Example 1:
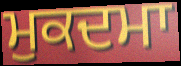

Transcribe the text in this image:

ਮੁਕਦਮਾ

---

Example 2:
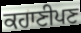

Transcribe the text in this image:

ਕਹਾਣੀਪਣ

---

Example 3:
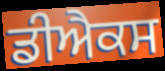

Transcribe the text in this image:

ਡੀਐਕਸ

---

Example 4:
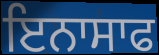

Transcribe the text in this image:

ਇਨਾਸਾਫ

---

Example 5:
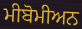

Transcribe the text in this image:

ਮੀਬੋਮੀਅਨ